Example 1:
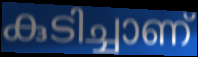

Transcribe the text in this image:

കുടിച്ചാണ്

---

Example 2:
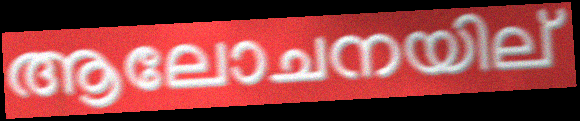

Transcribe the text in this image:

ആലോചനയില്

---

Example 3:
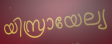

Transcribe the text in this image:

യിസ്രായേല്യ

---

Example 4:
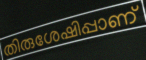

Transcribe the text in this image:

തിരുശേഷിപ്പാണ്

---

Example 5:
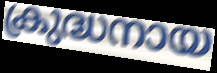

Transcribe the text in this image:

ക്രുദ്ധനായ